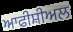
ਆਫੀਸ਼ੀਅਲ